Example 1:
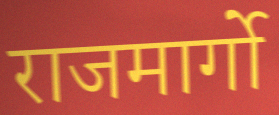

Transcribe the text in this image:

राजमार्गो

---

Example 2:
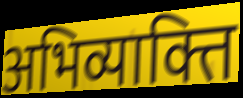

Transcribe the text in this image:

अभिव्याक्ति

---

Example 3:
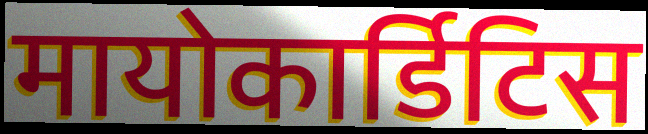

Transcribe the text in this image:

मायोकार्डिटिस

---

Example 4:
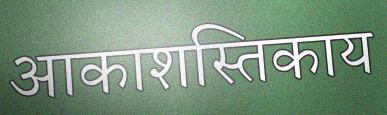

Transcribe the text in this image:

आकाशस्तिकाय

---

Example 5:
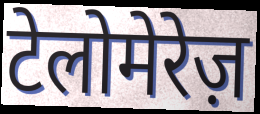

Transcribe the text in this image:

टेलोमेरेज़